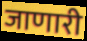
जाणारी